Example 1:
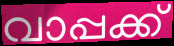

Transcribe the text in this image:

വാപ്പക്ക്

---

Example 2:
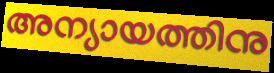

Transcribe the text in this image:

അന്യായത്തിനു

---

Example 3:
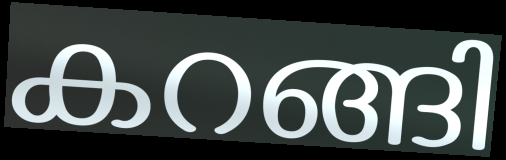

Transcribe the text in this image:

കറങ്ങി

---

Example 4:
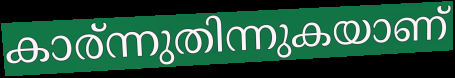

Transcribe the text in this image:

കാര്ന്നുതിന്നുകയാണ്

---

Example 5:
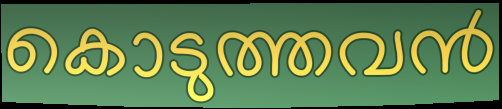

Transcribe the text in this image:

കൊടുത്തവൻ